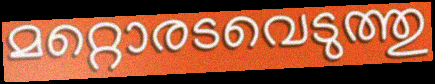
മറ്റൊരടവെടുത്തു